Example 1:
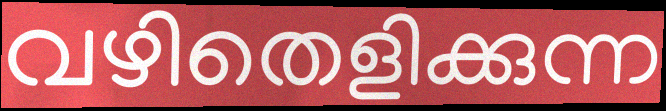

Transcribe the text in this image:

വഴിതെളിക്കുന്ന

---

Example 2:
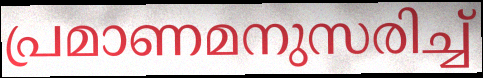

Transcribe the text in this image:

പ്രമാണമനുസരിച്ച്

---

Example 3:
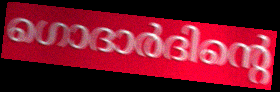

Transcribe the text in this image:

ഗൊദാർദിന്റെ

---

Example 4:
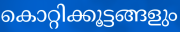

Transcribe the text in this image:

കൊറ്റിക്കൂട്ടങ്ങളും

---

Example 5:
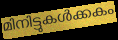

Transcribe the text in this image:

മിനിട്ടുകൾക്കകം